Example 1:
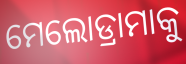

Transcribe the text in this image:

ମେଲୋଡ୍ରାମାକୁ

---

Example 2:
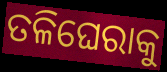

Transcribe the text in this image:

ତଳିଘେରାକୁ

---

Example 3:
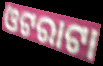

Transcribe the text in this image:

ଓଟରାଟା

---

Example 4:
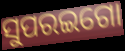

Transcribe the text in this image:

ସୁପରଇଗୋ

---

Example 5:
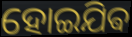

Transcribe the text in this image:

ହୋଇଯିଵ